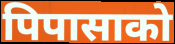
पिपासाको